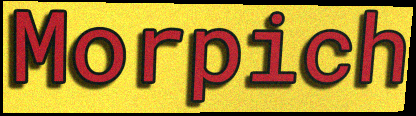
Morpich